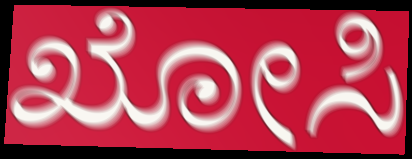
ಖೋಸಿ